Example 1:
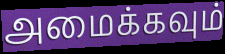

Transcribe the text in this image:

அமைக்கவும்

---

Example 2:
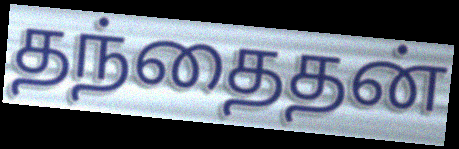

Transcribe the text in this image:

தந்தைதன்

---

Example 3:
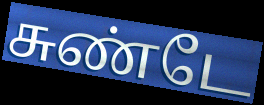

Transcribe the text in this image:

சுண்டே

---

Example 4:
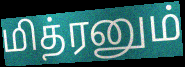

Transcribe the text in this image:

மித்ரனும்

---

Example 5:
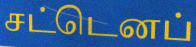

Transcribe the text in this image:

சட்டெனப்